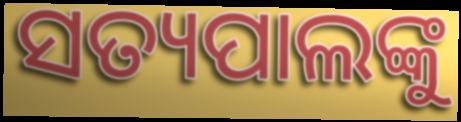
ସତ୍ୟପାଲଙ୍କୁ